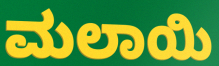
ಮಲಾಯಿ